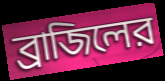
ব্রাজিলের